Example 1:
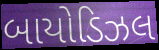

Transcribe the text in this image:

બાયોડિઝલ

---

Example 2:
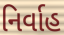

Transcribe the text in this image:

નિર્વાહ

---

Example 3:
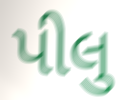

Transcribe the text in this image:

પીલુ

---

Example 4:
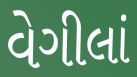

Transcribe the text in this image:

વેગીલાં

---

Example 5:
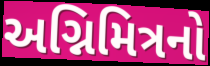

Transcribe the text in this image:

અગ્નિમિત્રનો